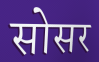
सोसर